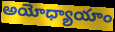
అయోధ్యాయాం